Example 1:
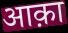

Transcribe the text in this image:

आक़ा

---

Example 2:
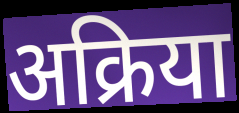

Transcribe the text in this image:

अक्रिया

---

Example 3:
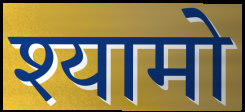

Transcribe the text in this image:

श्यामो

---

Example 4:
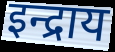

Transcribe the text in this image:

इन्द्राय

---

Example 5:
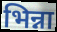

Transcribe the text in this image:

भिन्ना